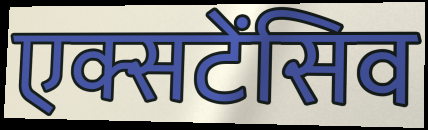
एक्सटेंसिव